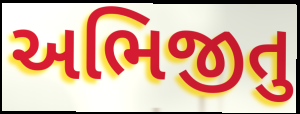
અભિજીતુ